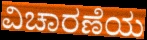
ವಿಚಾರಣೆಯ